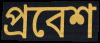
প্ৰবেশ